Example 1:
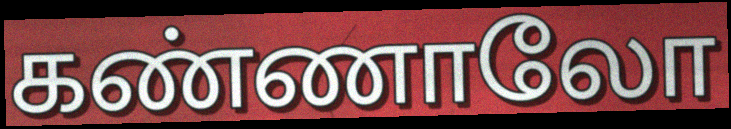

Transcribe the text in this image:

கண்ணாலோ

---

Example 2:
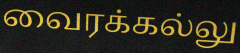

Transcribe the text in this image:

வைரக்கல்லு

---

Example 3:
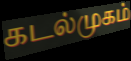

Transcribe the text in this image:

கடல்முகம்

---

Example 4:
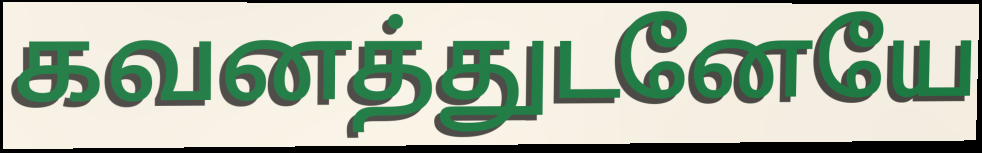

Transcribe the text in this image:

கவனத்துடனேயே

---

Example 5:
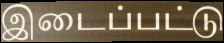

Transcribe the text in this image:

இடைப்பட்டு